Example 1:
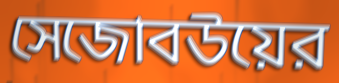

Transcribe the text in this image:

সেজোবউয়ের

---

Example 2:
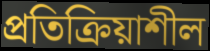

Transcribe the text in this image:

প্রতিক্রিয়াশীল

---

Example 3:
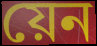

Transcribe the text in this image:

য়েন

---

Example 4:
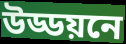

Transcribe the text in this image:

উড্ডয়নে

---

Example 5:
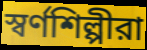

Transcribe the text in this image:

স্বর্ণশিল্পীরা